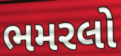
ભમરલો